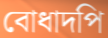
বোধাদপি